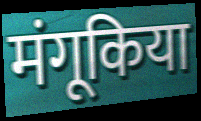
मंगूकिया